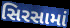
સિરસામાં